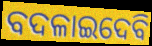
ବଦଳାଇଦେବି